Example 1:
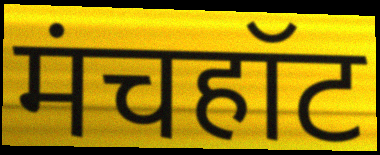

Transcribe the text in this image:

मंचहॉट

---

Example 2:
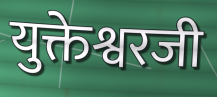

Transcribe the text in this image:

युक्तेश्वरजी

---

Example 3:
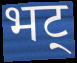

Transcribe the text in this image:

भट्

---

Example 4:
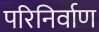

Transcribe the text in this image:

परिनिर्वाण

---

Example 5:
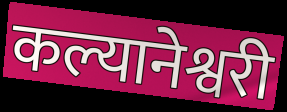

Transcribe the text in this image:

कल्यानेश्वरी